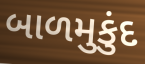
બાળમુકુંદ